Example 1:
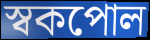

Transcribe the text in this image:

স্বকপোল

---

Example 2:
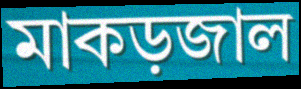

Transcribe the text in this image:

মাকড়জাল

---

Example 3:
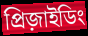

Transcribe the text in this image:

প্রিজ়াইডিং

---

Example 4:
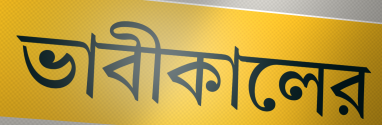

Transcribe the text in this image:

ভাবীকালের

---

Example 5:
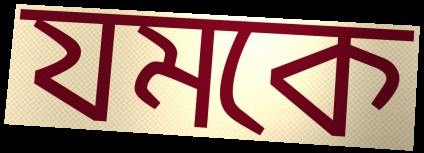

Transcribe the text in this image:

যমকে